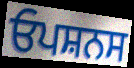
ਓਪਸ਼ਨਸ